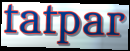
tatpar